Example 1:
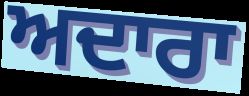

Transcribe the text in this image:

ਅਦਾਰਾ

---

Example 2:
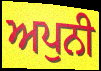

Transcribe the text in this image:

ਅਪੁਨੀ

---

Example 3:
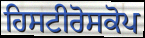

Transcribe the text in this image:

ਹਿਸਟੀਰੋਸਕੋਪ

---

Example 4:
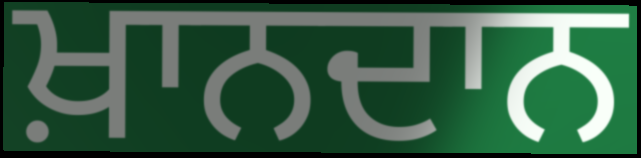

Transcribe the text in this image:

ਖ਼ਾਨਦਾਨ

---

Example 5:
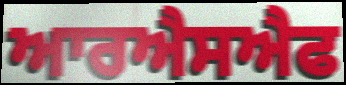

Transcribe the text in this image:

ਆਰਐਸਐਫ